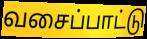
வசைப்பாட்டு